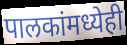
पालकांमध्येही